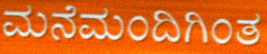
ಮನೆಮಂದಿಗಿಂತ